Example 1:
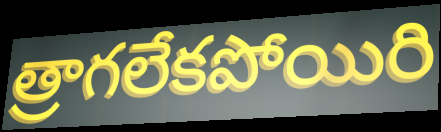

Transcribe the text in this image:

త్రాగలేకపోయిరి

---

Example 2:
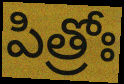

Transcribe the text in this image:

పిత్రోః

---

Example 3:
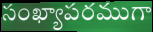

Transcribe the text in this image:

సంఖ్యాపరముగా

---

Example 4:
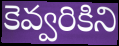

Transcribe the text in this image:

కెవ్వరికిని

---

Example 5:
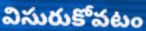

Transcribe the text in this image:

విసురుకోవటం